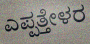
ಎಪ್ಪತ್ತೇಳರ